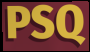
PSQ